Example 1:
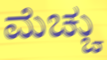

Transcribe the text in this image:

ಮೆಚ್ಚು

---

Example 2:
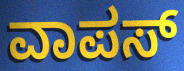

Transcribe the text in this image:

ವಾಪಸ್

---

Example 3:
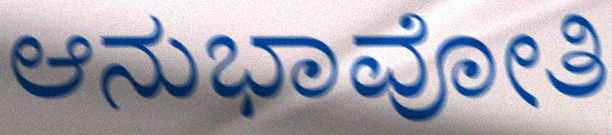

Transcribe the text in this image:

ಆನುಭಾವೋತಿ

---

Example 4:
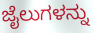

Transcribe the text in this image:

ಜೈಲುಗಳನ್ನು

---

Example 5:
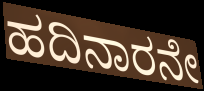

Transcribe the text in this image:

ಹದಿನಾರನೇ